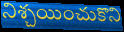
నిశ్చయించుకొని